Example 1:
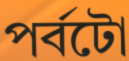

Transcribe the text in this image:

পৰ্বটো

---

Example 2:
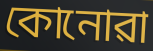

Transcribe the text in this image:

কোনোৱা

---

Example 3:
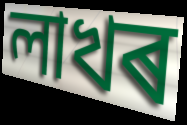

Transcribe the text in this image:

লাখৰ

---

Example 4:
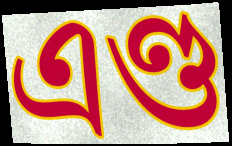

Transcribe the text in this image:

এণ্ড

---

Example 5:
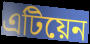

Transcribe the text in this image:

এটিয়েন